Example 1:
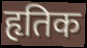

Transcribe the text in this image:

हृतिक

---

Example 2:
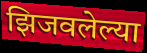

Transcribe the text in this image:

झिजवलेल्या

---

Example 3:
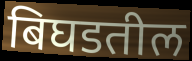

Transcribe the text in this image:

बिघडतील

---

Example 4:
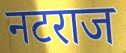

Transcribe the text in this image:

नटराज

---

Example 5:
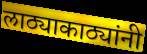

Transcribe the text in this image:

लाठ्याकाठ्यांनी